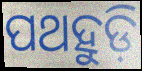
ପଥହୁଡ଼ି